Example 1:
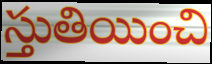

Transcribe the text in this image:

స్తుతియించి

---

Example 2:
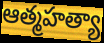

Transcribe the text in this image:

ఆత్మహత్యా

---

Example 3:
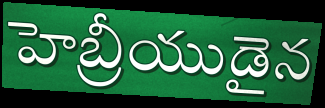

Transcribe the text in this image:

హెబ్రీయుడైన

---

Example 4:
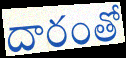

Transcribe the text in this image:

దారంతో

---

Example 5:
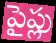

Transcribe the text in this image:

పైప్లు